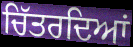
ਚਿੱਤਰਦਿਆਂ